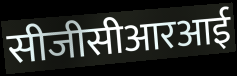
सीजीसीआरआई